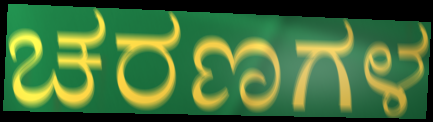
ಚರಣಗಳ